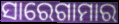
ସାରେଗାମାର